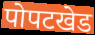
पोपटखेड